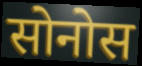
सोनोस